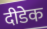
दीडेक